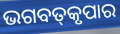
ଭଗବତ୍‌କୃପାର